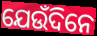
ଯେଉଁଦିନେ